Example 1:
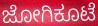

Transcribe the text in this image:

ಜೋಗಿಕೂಟೆ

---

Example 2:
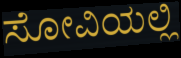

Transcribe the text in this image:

ಸೋವಿಯಲ್ಲಿ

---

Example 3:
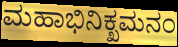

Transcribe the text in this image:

ಮಹಾಭಿನಿಕ್ಖಮನಂ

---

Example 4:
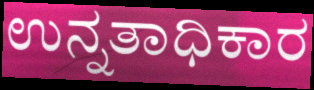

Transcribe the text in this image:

ಉನ್ನತಾಧಿಕಾರ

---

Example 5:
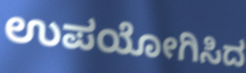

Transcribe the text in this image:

ಉಪಯೋಗಿಸಿದ